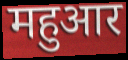
महुआर